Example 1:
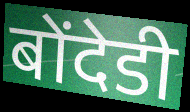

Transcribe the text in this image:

बोंदेडी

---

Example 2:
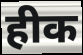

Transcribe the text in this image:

हीक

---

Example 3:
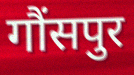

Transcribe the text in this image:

गौंसपुर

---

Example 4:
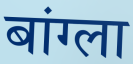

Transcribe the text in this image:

बांग्‍ला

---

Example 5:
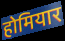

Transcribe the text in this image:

होमियार